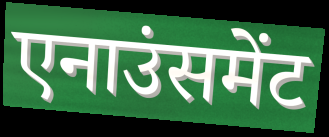
एनाउंसमेंट